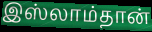
இஸ்லாம்தான்